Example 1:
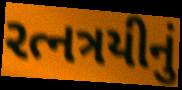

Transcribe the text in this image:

રત્નત્રયીનું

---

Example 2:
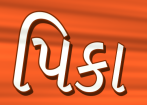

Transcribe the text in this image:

પિકા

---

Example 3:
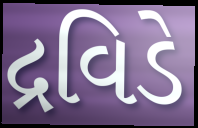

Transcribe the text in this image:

દ્રવિડે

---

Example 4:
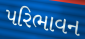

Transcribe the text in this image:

પરિભાવન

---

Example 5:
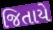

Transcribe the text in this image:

જિતાયે